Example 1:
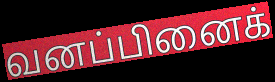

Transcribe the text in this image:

வனப்பினைக்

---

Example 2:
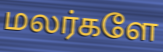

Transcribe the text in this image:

மலர்களே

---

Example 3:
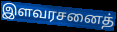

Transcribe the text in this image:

இளவரசனைத்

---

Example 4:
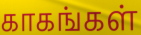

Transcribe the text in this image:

காகங்கள்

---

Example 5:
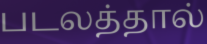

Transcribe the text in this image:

படலத்தால்